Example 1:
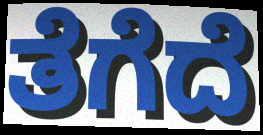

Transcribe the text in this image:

ತೆಗೆದೆ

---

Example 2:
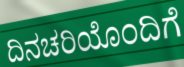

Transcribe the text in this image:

ದಿನಚರಿಯೊಂದಿಗೆ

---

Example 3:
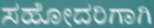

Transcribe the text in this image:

ಸಹೋದರಿಗಾಗಿ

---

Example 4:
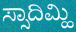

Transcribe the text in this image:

ಸ್ಸಾದಿಮ್ಹಿ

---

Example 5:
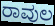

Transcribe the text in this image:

ರಾವುಲ